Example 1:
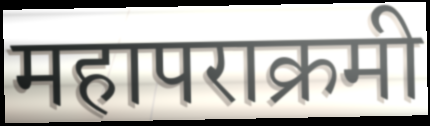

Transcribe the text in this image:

महापराक्रमी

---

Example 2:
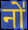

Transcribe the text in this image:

नो॑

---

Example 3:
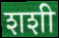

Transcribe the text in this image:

शशी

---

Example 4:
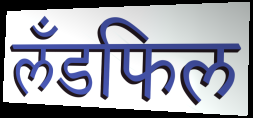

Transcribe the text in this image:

लँडफिल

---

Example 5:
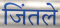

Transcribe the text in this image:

जिंतले